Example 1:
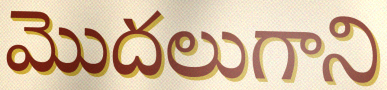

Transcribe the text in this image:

మొదలుగాని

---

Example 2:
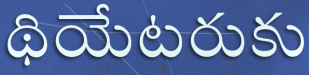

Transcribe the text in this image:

థియేటరుకు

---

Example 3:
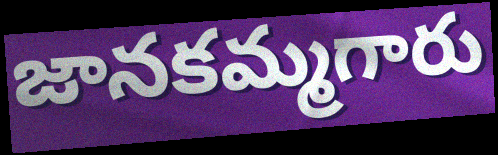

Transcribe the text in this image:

జానకమ్మగారు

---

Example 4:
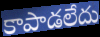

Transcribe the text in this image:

కాపాడలేదు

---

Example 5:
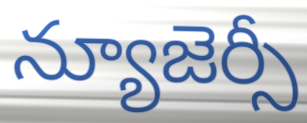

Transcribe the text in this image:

న్యూజెర్సీ